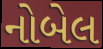
નોબેલ